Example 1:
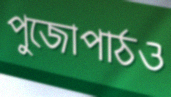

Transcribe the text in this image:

পুজোপাঠও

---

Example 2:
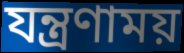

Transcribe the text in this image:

যন্ত্রণাময়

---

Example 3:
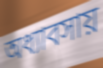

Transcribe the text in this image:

অধ্যাবসায়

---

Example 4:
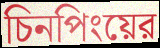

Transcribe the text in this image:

চিনপিংয়ের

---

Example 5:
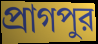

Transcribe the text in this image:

প্রাগপুর